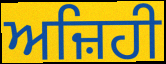
ਅਜ਼ਿਹੀ